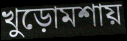
খুড়োমশায়